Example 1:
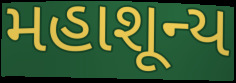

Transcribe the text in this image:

મહાશૂન્ય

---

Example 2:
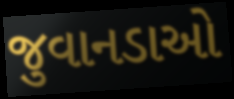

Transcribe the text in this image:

જુવાનડાઓ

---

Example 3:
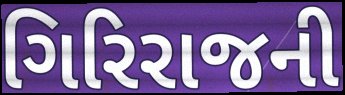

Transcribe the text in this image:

ગિરિરાજની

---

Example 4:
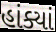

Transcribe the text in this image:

હાંક્યાં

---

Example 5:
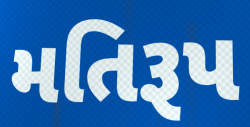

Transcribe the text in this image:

મતિરૂપ